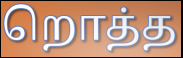
றொத்த